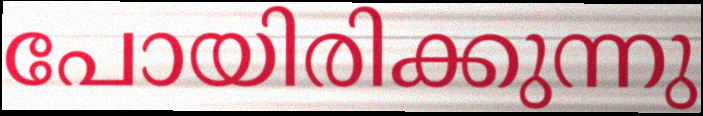
പോയിരിക്കുന്നു